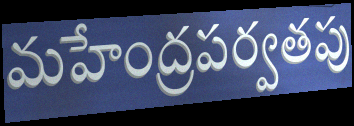
మహేంద్రపర్వతపు